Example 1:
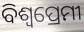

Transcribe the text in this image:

ବିଶ୍ଵପ୍ରେମୀ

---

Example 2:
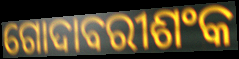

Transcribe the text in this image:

ଗୋଦାବରୀଶଂକ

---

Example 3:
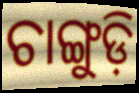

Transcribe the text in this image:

ଚାଙ୍ଗୁଡ଼ି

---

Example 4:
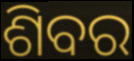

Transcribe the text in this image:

ଶିବର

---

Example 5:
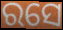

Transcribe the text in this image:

ରସେ